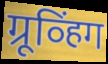
ग्रूव्हिंग